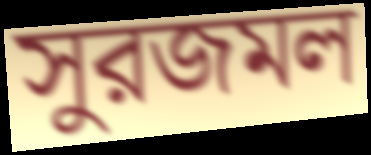
সুরজমল